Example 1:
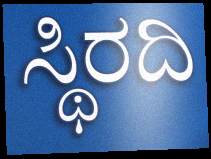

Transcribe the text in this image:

ಸ್ಥಿರದಿ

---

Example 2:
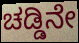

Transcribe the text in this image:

ಚಡ್ಡಿನೇ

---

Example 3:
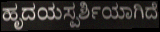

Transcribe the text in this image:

ಹೃದಯಸ್ಪರ್ಶಿಯಾಗಿದೆ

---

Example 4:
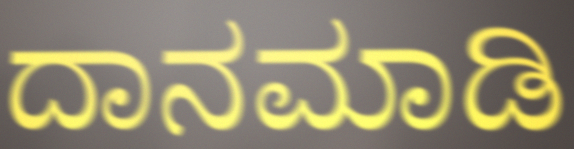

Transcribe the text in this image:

ದಾನಮಾಡಿ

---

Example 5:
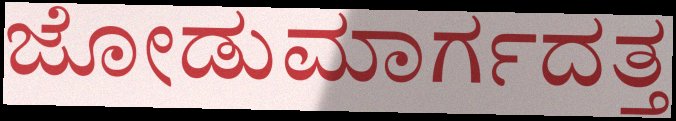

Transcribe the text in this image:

ಜೋಡುಮಾರ್ಗದತ್ತ